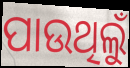
ପାଉଥିଲୁଁ